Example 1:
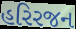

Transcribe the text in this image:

હરિરજન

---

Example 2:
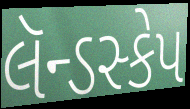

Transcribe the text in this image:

લૅન્ડસ્કેપ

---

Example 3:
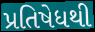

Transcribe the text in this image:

પ્રતિષેધથી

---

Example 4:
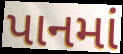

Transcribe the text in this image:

પાનમાં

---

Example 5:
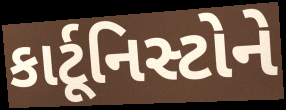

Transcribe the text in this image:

કાર્ટૂનિસ્ટોને